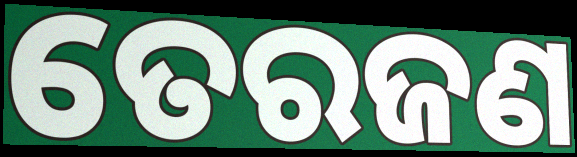
ତେରଜଣ